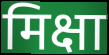
मिक्षा